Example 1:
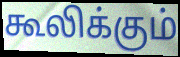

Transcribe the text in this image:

கூலிக்கும்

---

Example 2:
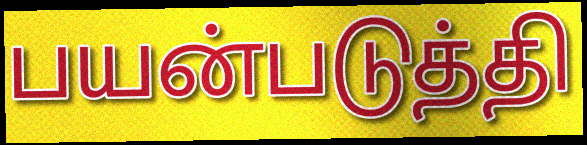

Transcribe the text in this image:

பயன்படுத்தி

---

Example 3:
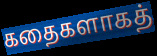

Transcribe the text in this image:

கதைகளாகத்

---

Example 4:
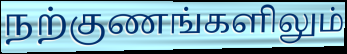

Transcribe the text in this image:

நற்குணங்களிலும்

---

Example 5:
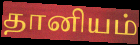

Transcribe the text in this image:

தானியம்